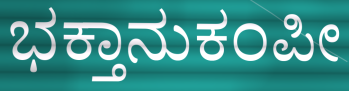
ಭಕ್ತಾನುಕಂಪೀ